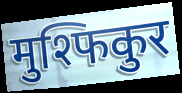
मुश्फिकुर